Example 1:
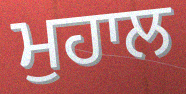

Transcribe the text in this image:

ਮੁਹਾਲ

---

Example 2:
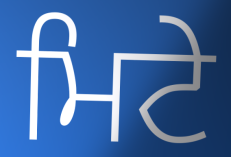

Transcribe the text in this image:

ਮਿਟੇ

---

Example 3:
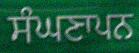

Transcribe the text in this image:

ਸੰਘਣਾਪਨ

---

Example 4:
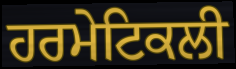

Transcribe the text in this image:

ਹਰਮੇਟਿਕਲੀ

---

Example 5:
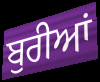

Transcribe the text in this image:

ਬੁਰੀਆਂ